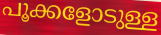
പൂക്കളോടുള്ള